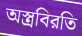
অস্ত্রবিরতি